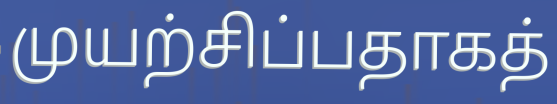
முயற்சிப்பதாகத்